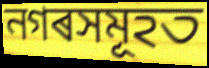
নগৰসমূহত